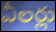
వీలర్లు